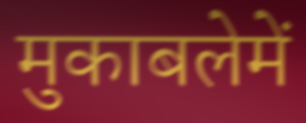
मुकाबलेमें